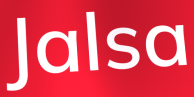
Jalsa